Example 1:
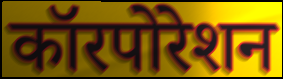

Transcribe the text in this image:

कॉरपोरेशन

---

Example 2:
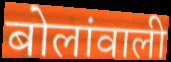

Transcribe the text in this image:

बोलांवाली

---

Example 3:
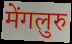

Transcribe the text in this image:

मेंगलुरु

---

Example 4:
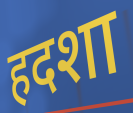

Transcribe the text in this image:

हदशा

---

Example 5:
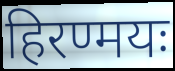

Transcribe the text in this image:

हिरण्मयः